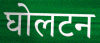
घोलटन